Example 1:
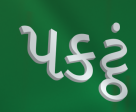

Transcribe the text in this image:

પકટ્ઠં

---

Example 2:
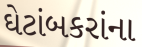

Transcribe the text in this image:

ઘેટાંબકરાંના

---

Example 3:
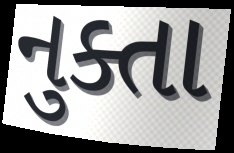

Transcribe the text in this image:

નુક્તા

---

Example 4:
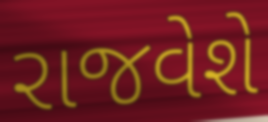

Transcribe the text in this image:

રાજવેશે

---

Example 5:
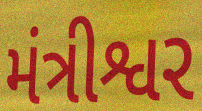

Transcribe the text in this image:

મંત્રીશ્વર